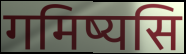
गमिष्यसि